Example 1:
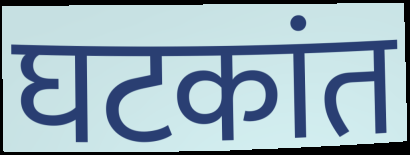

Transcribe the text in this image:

घटकांत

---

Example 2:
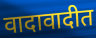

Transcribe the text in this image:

वादावादीत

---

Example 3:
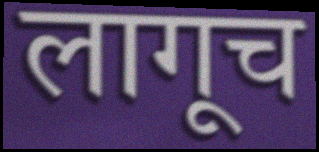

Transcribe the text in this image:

लागूच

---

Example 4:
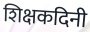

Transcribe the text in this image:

शिक्षकदिनी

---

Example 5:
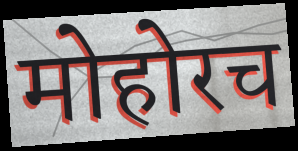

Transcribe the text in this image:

मोहोरच